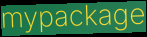
mypackage